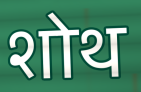
शोथ